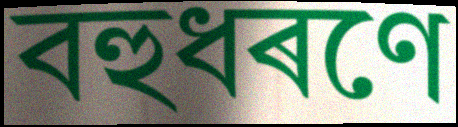
বহুধৰণে